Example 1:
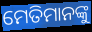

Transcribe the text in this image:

ମେତିମାନଙ୍କୁ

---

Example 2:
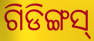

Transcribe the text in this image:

ଗିଡିଙ୍ଗସ୍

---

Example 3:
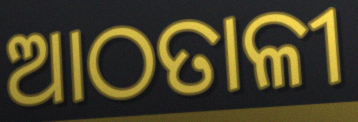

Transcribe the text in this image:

ଆଠତାଳୀ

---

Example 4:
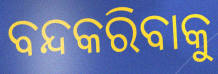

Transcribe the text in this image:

ବନ୍ଦକରିବାକୁ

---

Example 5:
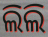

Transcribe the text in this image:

ଲିଲି